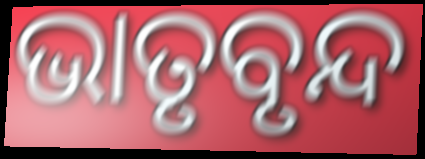
ଭାତୃବୃନ୍ଦ